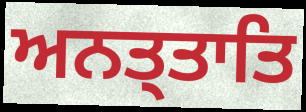
ਅਨਤ੍ਤਾਤਿ